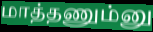
மாத்தணும்னு